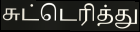
சுட்டெரித்து